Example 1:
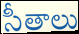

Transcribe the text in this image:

సీతాలు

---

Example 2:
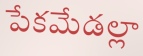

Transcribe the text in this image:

పేకమేడల్లా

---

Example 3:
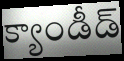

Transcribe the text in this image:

క్యాండీడ్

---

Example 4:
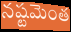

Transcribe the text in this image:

నష్టమెంత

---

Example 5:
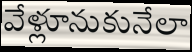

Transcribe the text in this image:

వేళ్లూనుకునేలా